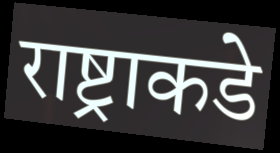
राष्ट्राकडे